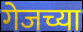
गेजच्या